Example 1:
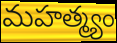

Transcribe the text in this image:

మహత్మ్యం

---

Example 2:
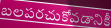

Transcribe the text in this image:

బలపరచుకోవడానికీ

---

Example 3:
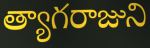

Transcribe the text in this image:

త్యాగరాజుని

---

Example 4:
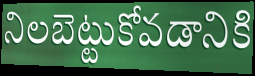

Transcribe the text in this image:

నిలబెట్టుకోవడానికి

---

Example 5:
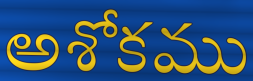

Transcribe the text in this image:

అశోకము